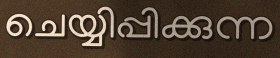
ചെയ്യിപ്പിക്കുന്ന